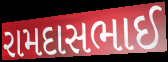
રામદાસભાઈ